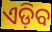
ଏଡ଼ିବ